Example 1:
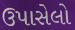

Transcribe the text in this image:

ઉપાસેલો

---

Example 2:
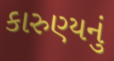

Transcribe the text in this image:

કારુણ્યનું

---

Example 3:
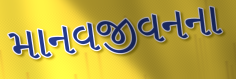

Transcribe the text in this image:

માનવજીવનના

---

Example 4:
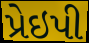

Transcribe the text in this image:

પ્રેઇપી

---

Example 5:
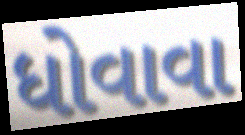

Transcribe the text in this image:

ધોવાવા